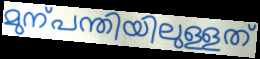
മുന്പന്തിയിലുള്ളത്